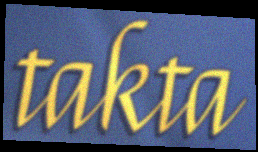
takta